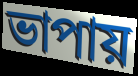
ভাপায়